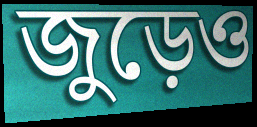
জুড়েও